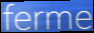
ferme